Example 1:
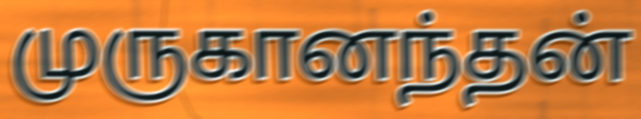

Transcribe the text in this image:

முருகானந்தன்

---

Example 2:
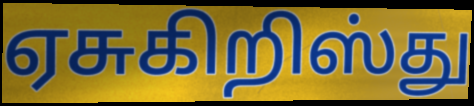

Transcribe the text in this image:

ஏசுகிறிஸ்து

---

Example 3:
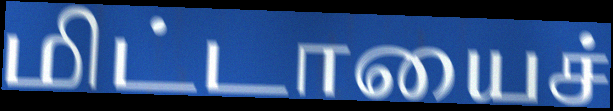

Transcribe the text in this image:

மிட்டாயைச்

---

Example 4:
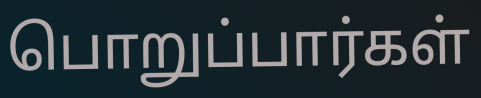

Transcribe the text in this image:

பொறுப்பார்கள்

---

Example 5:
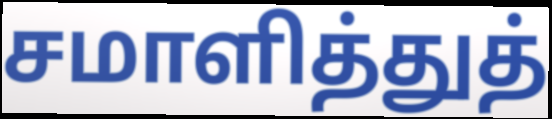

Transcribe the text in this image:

சமாளித்துத்